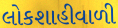
લોકશાહીવાળી